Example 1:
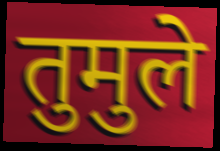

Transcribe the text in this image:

तुमुले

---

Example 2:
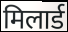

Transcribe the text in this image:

मिलार्ड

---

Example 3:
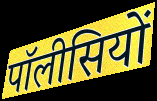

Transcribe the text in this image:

पॉलीसियों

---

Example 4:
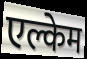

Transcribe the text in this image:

एल्केम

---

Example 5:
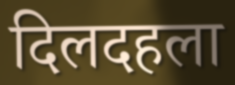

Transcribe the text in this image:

दिलदहला